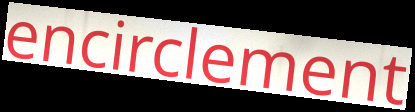
encirclement